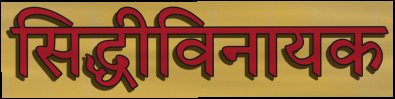
सिद्धीविनायक